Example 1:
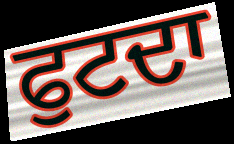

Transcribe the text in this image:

ਫੁਟਦਾ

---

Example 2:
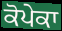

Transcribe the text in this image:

ਕੋਪੇਕਾ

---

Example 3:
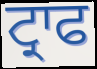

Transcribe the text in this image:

ਟ੍ਰਾਫ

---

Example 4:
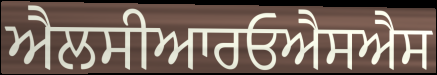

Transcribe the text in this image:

ਐਲਸੀਆਰਓਐਸਐਸ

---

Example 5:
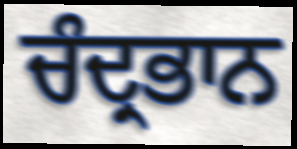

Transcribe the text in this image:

ਚੰਦ੍ਰਭਾਨ